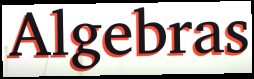
Algebras